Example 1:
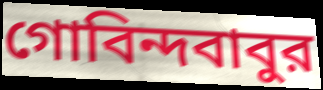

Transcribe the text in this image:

গোবিন্দবাবুর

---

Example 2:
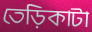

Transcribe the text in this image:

তেড়িকাটা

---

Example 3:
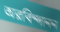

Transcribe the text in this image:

অরবিন্দানন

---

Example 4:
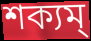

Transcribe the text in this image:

শক্যম্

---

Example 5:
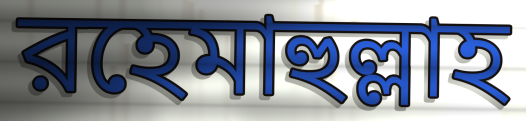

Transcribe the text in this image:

রহেমাহুল্লাহ